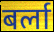
बर्ला